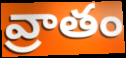
వ్రాతం